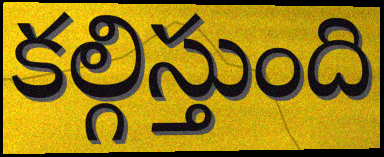
కల్గిస్తుంది